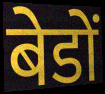
बेडों